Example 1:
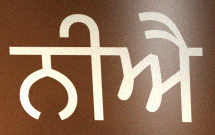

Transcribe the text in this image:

ਨੀਐ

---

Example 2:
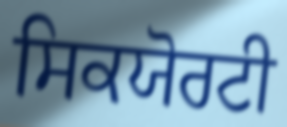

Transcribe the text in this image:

ਸਿਕਯੋਰਟੀ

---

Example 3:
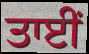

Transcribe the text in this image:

ਤਾਈਂ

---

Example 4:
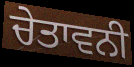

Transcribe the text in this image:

ਚੇਤਾਵਨੀ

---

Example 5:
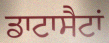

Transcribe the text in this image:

ਡਾਟਾਸੈਟਾਂ